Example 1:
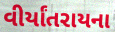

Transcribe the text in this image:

વીર્યાંતરાયના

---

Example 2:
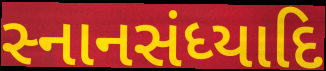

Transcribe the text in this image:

સ્નાનસંધ્યાદિ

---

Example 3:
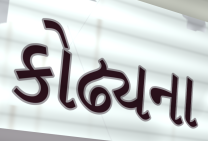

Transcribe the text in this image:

કોઢ્યના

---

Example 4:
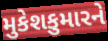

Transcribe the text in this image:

મુકેશકુમારને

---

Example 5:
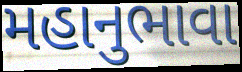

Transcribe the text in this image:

મહાનુભાવા